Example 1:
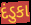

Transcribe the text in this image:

દંડુકા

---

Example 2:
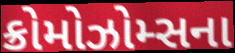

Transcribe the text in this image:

ક્રોમોઝોમ્સના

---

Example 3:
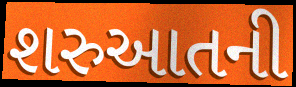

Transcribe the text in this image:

શરુઆતની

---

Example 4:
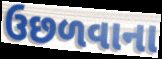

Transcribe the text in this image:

ઉછળવાના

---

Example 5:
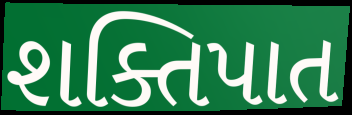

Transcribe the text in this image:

શક્તિપાત